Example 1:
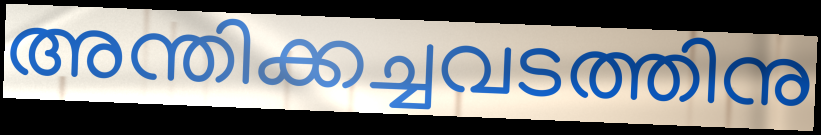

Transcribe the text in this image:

അന്തിക്കച്ചവടത്തിനു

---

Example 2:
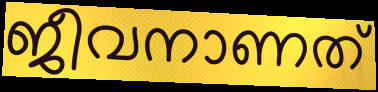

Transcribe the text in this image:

ജീവനാണത്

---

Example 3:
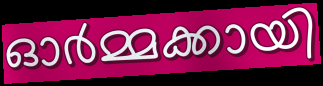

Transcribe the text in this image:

ഓർമ്മക്കായി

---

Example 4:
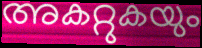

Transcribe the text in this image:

അകറ്റുകയും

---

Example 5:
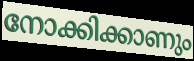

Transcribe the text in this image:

നോക്കിക്കാണും